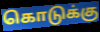
கொடுக்கு